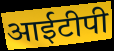
आईटीपी